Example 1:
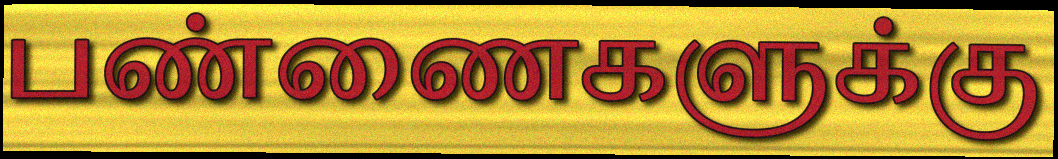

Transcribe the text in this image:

பண்ணைகளுக்கு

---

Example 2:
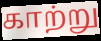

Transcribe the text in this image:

காற்று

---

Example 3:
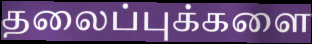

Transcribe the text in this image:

தலைப்புக்களை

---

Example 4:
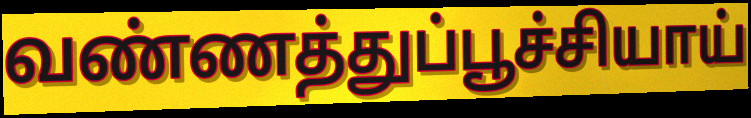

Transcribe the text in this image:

வண்ணத்துப்பூச்சியாய்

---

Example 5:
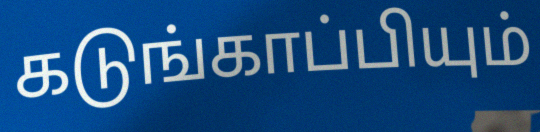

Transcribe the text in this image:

கடுங்காப்பியும்